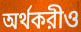
অর্থকরীও